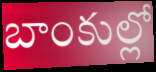
బాంకుల్లో